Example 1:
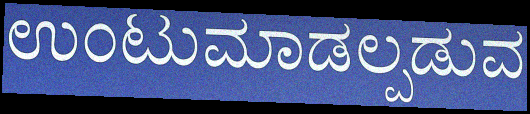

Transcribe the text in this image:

ಉಂಟುಮಾಡಲ್ಪಡುವ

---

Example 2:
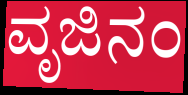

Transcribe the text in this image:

ವೃಜಿನಂ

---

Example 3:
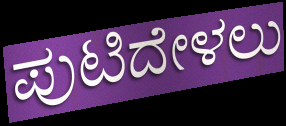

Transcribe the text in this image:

ಪುಟಿದೇಳಲು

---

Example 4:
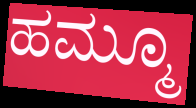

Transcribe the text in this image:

ಹಮ್ಮೂ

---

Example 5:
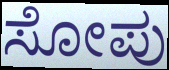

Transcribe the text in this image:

ಸೋಪು